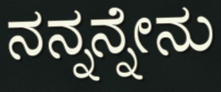
ನನ್ನನ್ನೇನು